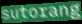
sutorang